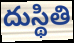
దుస్థితి